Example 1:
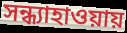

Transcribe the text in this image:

সন্ধ্যাহাওয়ায়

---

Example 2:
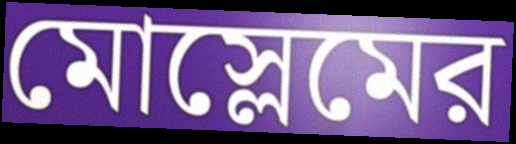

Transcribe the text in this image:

মোস্লেমের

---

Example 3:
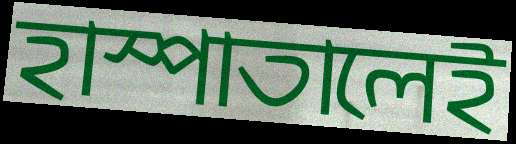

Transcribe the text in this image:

হাস্পাতালেই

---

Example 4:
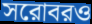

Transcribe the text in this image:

সরোবরও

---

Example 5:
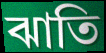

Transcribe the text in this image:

ঝাতি